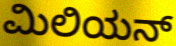
ಮಿಲಿಯನ್